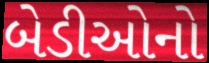
બેડીઓનો